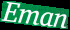
Eman